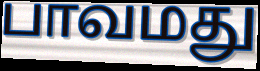
பாவமது